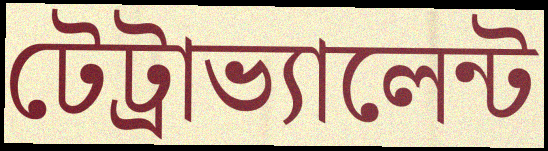
টেট্রাভ্যালেন্ট